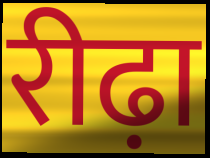
रीढ़ा